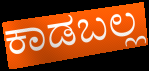
ಕಾಡಬಲ್ಲ